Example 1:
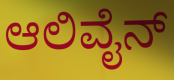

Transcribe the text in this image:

ಆಲಿವೈನ್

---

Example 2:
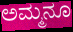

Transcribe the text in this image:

ಅಮ್ಮನೂ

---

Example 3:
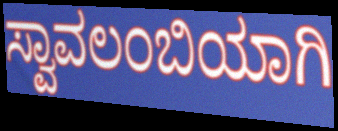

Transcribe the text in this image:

ಸ್ವಾವಲಂಬಿಯಾಗಿ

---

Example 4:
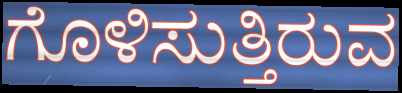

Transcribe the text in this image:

ಗೊಳಿಸುತ್ತಿರುವ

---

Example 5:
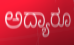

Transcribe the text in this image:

ಅದ್ಯಾರೂ